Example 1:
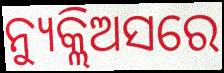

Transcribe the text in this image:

ନ୍ୟୁକ୍ଲିଅସରେ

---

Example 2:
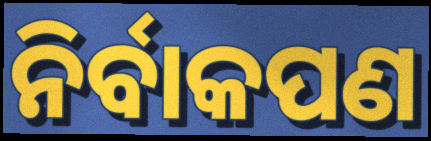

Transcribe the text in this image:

ନିର୍ବାକପଣ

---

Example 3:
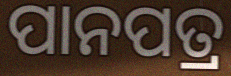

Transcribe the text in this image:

ପାନପତ୍ର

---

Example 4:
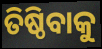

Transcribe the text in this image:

ତିଷ୍ଠିବାକୁ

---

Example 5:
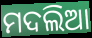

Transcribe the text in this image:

ମଦଲିଆ